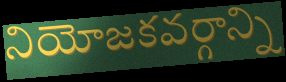
నియోజకవర్గాన్ని